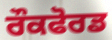
ਰੌਕਫੋਰਡ